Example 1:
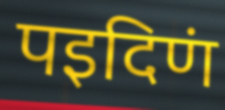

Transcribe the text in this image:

पइदिणं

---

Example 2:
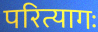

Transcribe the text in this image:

परित्यागः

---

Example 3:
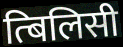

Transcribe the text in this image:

त्बिलिसी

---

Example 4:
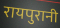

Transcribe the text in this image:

रायपुरानी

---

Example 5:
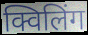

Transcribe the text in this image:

क्विलिंग